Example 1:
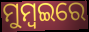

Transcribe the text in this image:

ମୁମ୍ବଇରେ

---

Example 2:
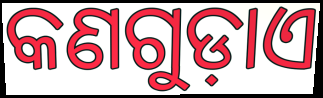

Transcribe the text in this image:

କଣଗୁଡ଼ାଏ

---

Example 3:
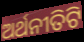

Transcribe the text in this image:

ଅର୍ଥନୀତିଟି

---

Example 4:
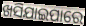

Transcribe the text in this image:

ଖସିଯାଇପାରେ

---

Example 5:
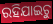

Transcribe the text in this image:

ରହିଯାଇଚୁ